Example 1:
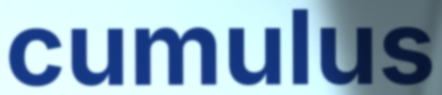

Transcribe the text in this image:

cumulus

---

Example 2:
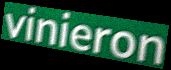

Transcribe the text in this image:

vinieron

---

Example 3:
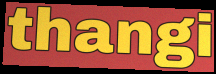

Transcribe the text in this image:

thangi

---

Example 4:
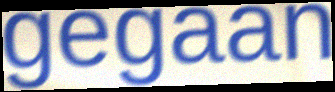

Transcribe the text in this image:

gegaan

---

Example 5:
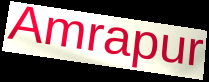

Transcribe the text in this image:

Amrapur